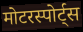
मोटरस्पोर्ट्स